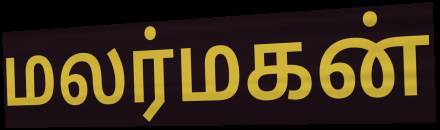
மலர்மகன்